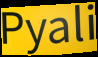
Pyali